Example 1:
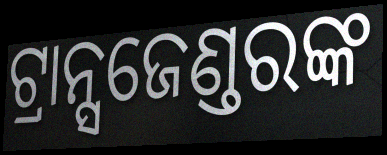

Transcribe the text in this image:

ଟ୍ରାନ୍ସଜେଣ୍ଡରଙ୍କ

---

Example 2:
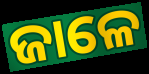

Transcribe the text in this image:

ଜାଳେ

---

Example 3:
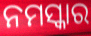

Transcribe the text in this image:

ନମସ୍କାର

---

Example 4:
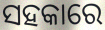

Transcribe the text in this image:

ସହକାରେ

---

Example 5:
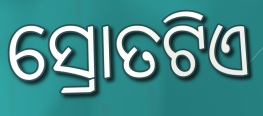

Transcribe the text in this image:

ସ୍ରୋତଟିଏ